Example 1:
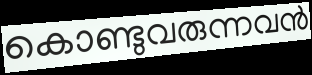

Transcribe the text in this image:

കൊണ്ടുവരുന്നവൻ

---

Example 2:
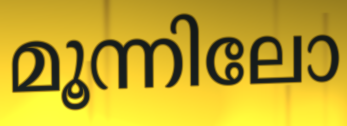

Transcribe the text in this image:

മൂന്നിലോ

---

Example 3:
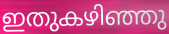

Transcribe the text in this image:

ഇതുകഴിഞ്ഞു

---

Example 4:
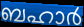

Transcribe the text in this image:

ബഹാർ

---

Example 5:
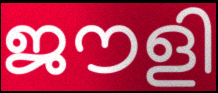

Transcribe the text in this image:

ജൗളി